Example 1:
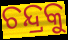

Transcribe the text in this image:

ଚନ୍ଦ୍ରକୁ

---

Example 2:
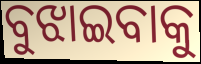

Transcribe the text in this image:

ବୁଝାଇବାକୁ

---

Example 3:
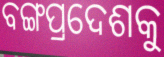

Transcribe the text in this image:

ବଙ୍ଗପ୍ରଦେଶକୁ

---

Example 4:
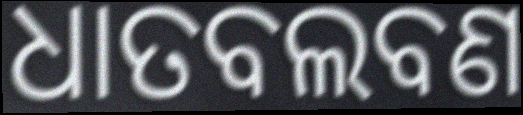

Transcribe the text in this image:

ଧାତବଲବଣ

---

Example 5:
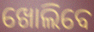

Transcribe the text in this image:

ଖୋଲିବେ